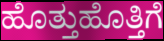
ಹೊತ್ತುಹೊತ್ತಿಗೆ